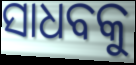
ସାଧବକୁ